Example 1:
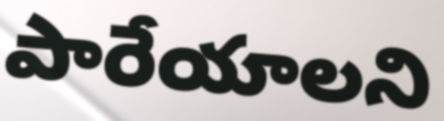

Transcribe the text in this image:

పారేయాలని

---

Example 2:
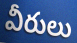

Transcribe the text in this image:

వీరులు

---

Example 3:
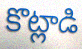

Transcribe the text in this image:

కొట్లాడి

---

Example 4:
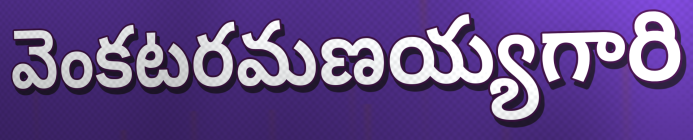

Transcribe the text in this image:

వెంకటరమణయ్యగారి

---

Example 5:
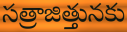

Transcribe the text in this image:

సత్రాజిత్తునకు